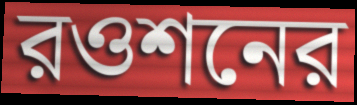
রওশনের